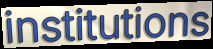
institutions